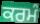
ਕਰਮੰ